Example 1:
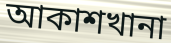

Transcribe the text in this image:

আকাশখানা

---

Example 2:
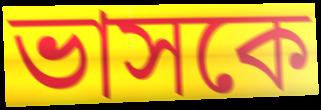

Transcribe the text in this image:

ভাসকে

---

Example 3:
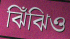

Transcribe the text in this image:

ঝিঁঝিও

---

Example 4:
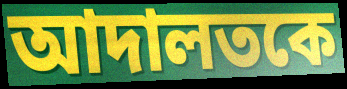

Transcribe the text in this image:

আদালতকে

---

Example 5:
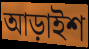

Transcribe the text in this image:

আড়াইশ